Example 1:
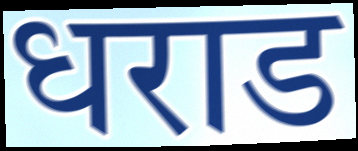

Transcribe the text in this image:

धराड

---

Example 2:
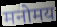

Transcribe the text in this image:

मनोमय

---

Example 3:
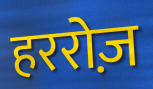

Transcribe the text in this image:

हररोज़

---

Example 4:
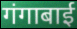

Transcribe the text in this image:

गंगाबाई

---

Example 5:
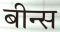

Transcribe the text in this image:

बीन्‍स